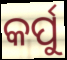
କର୍ପୁ